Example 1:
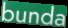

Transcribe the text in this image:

bunda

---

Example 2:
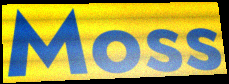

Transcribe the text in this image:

Moss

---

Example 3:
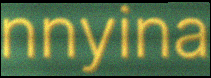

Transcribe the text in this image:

nnyina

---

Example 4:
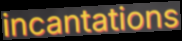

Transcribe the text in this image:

incantations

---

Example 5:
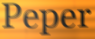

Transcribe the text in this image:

Peper